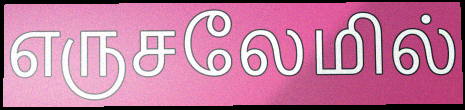
எருசலேமில்